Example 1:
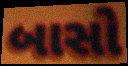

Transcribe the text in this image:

બાસો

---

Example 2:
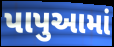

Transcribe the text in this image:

પાપુઆમાં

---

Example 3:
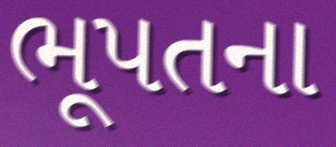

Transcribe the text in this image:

ભૂપતના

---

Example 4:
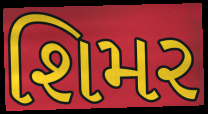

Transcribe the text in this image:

શિમર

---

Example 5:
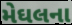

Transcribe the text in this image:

મેઘલના